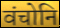
वंचोनि